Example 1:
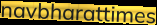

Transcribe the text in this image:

navbharattimes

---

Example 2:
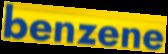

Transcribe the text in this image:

benzene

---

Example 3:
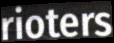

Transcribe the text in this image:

rioters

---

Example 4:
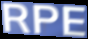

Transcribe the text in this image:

RPE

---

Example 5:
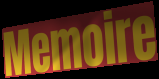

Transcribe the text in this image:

Memoire